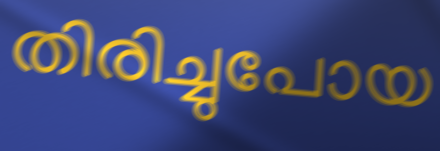
തിരിച്ചുപോയ